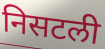
निसटली